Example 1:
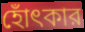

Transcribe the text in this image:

হোঁৎকার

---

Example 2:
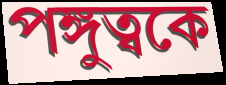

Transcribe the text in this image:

পঙ্গুত্বকে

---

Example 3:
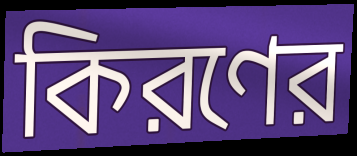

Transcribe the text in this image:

কিরণের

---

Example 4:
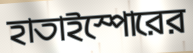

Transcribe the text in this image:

হাতাইস্পোরের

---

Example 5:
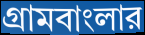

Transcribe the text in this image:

গ্রামবাংলার